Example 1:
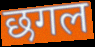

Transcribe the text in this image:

छगल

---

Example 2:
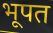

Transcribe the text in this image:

भूपत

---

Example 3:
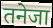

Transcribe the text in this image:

तनेजा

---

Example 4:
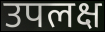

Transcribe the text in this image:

उपलक्ष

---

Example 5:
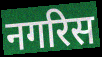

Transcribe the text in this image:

नगरिस